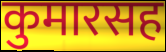
कुमारसह